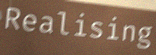
Realising